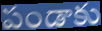
పండాకు